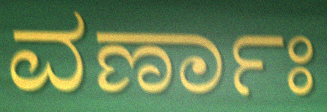
ವರ್ಣಾಃ